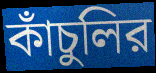
কাঁচুলির